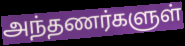
அந்தணர்களுள்